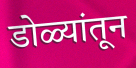
डोळ्यांतून